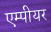
एम्पीयर